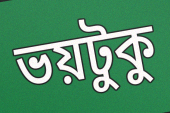
ভয়টুকু